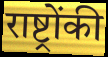
राष्ट्रोंकी